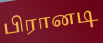
பிரானடி